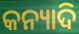
କନ୍ୟାଦି